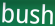
bush